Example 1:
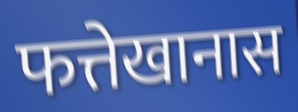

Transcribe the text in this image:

फत्तेखानास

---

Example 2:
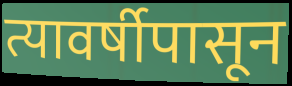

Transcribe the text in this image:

त्यावर्षीपासून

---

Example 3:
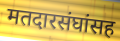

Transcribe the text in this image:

मतदारसंघांसह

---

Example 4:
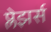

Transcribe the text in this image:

प्लेझर्स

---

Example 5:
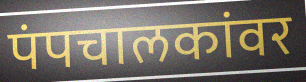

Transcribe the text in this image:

पंपचालकांवर